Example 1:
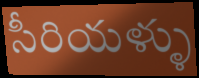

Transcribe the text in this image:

సీరియళ్ళు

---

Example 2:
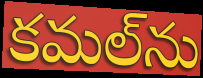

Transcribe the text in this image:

కమల్‌ను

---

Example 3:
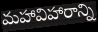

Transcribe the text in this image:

మహావిహారాన్ని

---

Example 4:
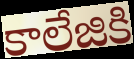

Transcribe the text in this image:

కాలేజికి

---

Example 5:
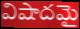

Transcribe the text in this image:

విషాదమై